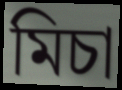
মিচা